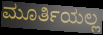
ಮೂರ್ತಿಯಲ್ಲ